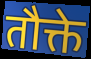
तौक्ते